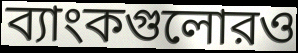
ব্যাংকগুলোরও